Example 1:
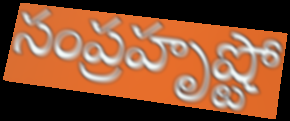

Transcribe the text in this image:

సంప్రహృష్టో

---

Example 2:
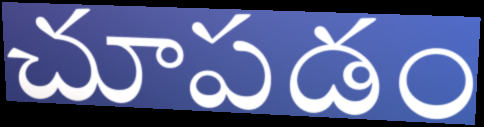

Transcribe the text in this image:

చూపడం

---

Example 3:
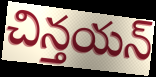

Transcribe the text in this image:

చిన్తయన్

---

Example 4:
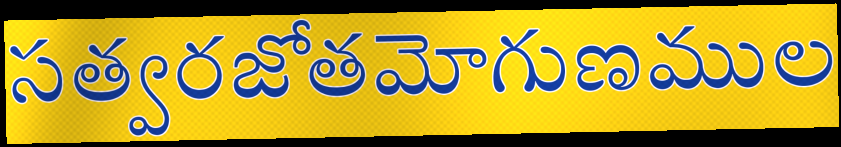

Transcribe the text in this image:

సత్వరజోతమోగుణముల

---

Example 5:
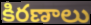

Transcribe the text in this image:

కిరణాలు